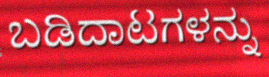
ಬಡಿದಾಟಗಳನ್ನು